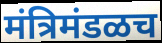
मंत्रिमंडळच